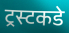
ट्रस्टकडे